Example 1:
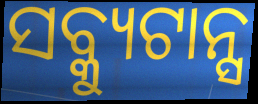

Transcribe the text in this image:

ସବ୍କ୍ୟୁଟାନ୍ସ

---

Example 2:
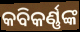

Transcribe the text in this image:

କବିକର୍ଣ୍ଣଙ୍କ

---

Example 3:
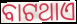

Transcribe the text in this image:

ବାଟଥାଏ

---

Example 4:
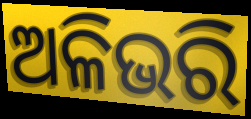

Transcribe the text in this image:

ଅଳିଭରି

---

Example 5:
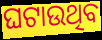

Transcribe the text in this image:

ଘଟାଉଥିବ